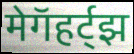
मेगॅहर्ट्‌झ